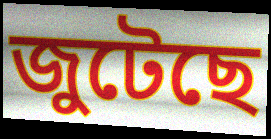
জুটেছে